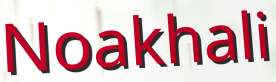
Noakhali